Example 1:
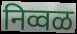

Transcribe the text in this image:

निव्‍वळ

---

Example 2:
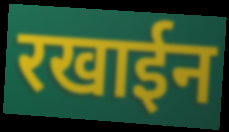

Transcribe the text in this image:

रखाईन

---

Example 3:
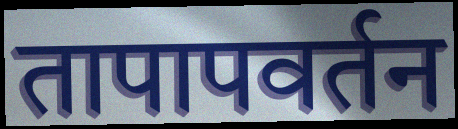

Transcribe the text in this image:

तापापवर्तन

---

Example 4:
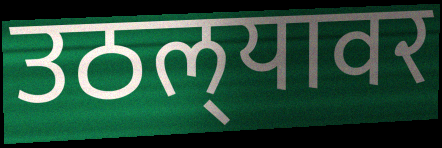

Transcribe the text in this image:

उठल्यावर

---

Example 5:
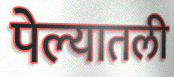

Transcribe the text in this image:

पेल्यातली